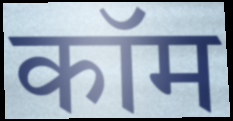
कॉम